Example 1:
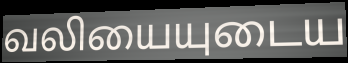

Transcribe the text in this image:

வலியையுடைய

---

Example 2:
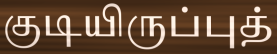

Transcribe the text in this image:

குடியிருப்புத்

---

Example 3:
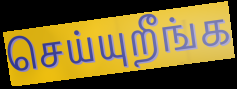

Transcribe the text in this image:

செய்யுறீங்க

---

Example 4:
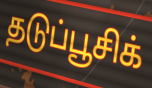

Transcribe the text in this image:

தடுப்பூசிக்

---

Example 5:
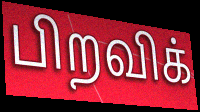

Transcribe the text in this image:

பிறவிக்